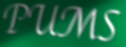
PUMS